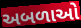
અબળાઓ